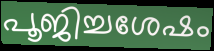
പൂജിച്ചശേഷം